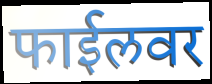
फाईलवर